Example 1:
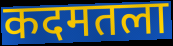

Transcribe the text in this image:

कदमतला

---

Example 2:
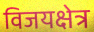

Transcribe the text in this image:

विजयक्षेत्र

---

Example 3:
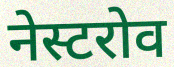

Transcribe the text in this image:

नेस्टरोव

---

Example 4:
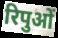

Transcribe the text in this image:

रिपुओं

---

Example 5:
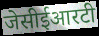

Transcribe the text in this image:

जेसीईआरटी